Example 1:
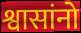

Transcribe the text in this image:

श्वासांनो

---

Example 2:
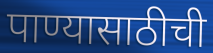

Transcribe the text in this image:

पाण्यासाठीची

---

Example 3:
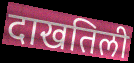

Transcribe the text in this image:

दाखतिली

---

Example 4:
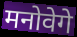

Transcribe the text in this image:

मनोवेगे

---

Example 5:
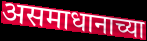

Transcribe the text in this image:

असमाधानाच्या